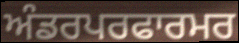
ਅੰਡਰਪਰਫਾਰਮਰ